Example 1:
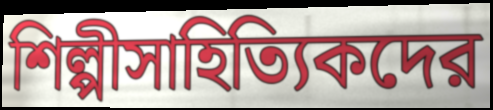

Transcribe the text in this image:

শিল্পীসাহিত্যিকদের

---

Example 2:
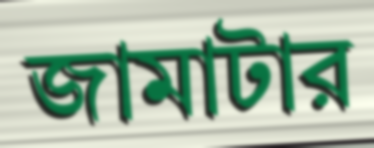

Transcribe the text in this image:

জামাটার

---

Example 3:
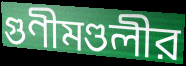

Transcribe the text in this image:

গুণীমণ্ডলীর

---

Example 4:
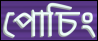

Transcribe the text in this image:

পোচিং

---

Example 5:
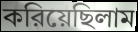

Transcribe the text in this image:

করিয়েছিলাম